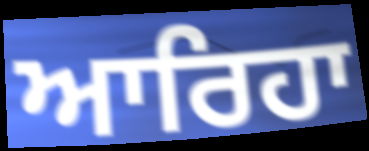
ਆਰਿਹਾ